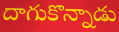
దాగుకొన్నాడు